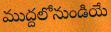
ముద్దలోనుండియే